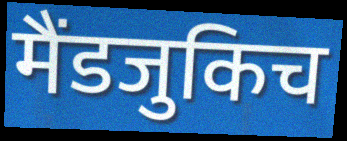
मैंडजुकिच